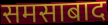
समसाबाद